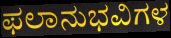
ಫಲಾನುಭವಿಗಳ